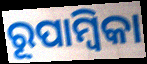
ରୂପାମ୍ବିକା